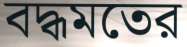
বদ্ধমতের